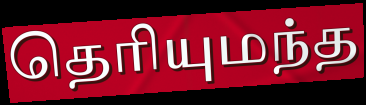
தெரியுமந்த